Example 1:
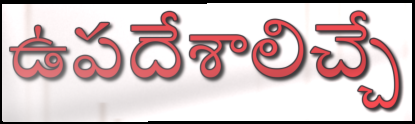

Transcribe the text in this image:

ఉపదేశాలిచ్చే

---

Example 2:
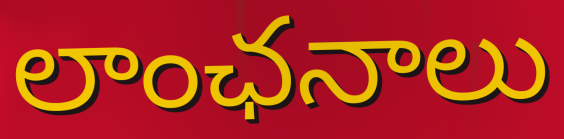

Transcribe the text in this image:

లాంఛనాలు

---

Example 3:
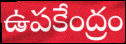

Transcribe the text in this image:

ఉపకేంద్రం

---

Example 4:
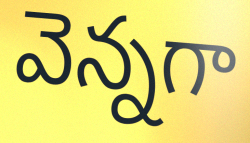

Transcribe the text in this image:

వెన్నగా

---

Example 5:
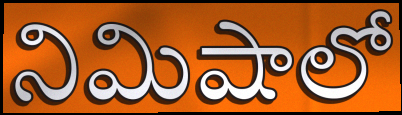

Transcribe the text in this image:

నిమిషాలో